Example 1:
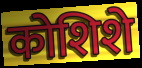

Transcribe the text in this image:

कोशिशे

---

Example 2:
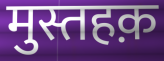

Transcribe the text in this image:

मुस्तहक़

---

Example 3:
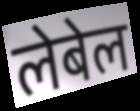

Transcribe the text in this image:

लेबेल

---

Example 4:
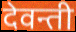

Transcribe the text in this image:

देवन्ती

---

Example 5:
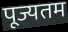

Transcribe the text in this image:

पूज्यतम